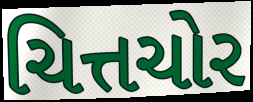
ચિત્તચોર